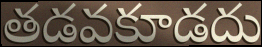
తడవకూడదు